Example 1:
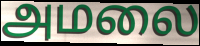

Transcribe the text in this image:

அமலை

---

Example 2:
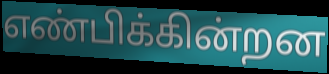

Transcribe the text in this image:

எண்பிக்கின்றன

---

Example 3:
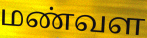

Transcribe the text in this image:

மண்வள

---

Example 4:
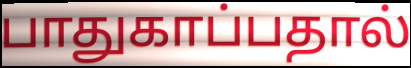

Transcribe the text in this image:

பாதுகாப்பதால்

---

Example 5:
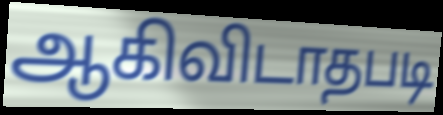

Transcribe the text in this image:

ஆகிவிடாதபடி